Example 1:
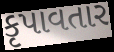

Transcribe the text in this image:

કૃપાવતાર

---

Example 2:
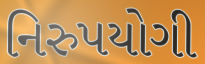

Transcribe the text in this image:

નિરુપયોગી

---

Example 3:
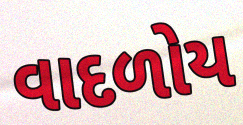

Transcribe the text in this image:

વાદળોય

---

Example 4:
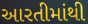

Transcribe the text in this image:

આરતીમાંથી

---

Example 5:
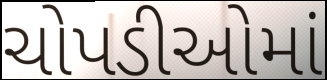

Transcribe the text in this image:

ચોપડીઓમાં